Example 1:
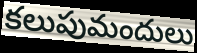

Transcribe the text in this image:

కలుపుమందులు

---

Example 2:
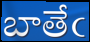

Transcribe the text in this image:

బాతేఁ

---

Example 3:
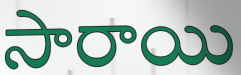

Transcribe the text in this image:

సారాయి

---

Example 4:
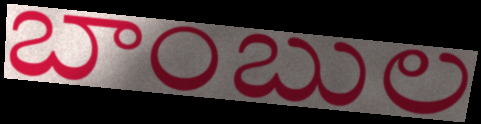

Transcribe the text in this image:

బాంబుల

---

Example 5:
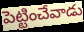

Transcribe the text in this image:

పెట్టించేవాడు